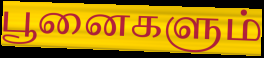
பூனைகளும்